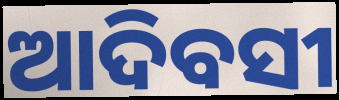
ଆଦିବସୀ